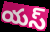
యస్